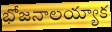
భోజనాలయ్యాక